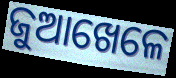
ଜୁଆଖେଳେ